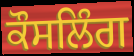
ਕੌਸਲਿੰਗ